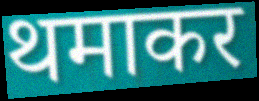
थमाकर